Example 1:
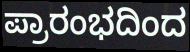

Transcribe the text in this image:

ಪ್ರಾರಂಭದಿಂದ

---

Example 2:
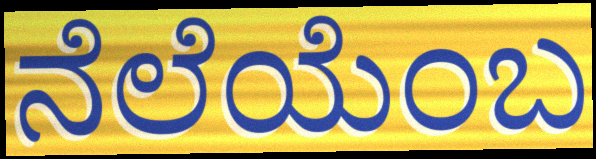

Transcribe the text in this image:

ನೆಲೆಯೆಂಬ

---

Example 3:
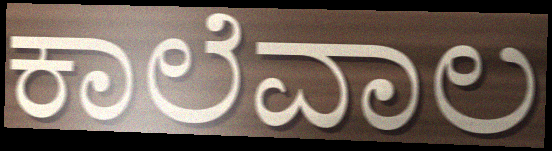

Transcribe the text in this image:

ಕಾಲೆವಾಲ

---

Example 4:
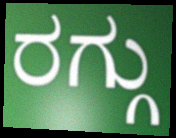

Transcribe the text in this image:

ರಗ್ಗು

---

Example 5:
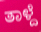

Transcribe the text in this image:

ತಾಳ್ದೆ